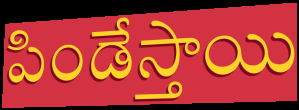
పిండేస్తాయి